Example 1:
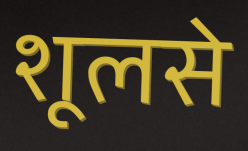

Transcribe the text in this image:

शूलसे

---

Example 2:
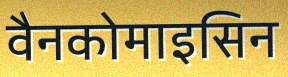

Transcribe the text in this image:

वैनकोमाइसिन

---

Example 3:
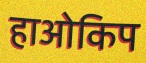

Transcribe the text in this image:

हाओकिप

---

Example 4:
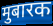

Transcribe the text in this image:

मुबारक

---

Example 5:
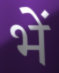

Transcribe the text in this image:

भें